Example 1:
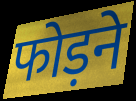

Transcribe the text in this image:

फोड़ने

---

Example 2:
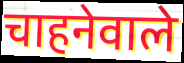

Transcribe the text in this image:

चाहनेवाले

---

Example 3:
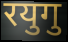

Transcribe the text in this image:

रयुगु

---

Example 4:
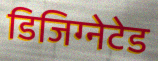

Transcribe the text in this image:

डिजिग्नेटेड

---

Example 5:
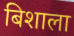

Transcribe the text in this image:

बिशाला